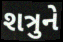
શત્રુને